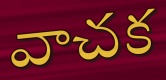
వాచక